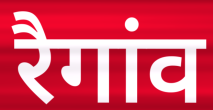
रैगांव